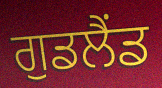
ਗੁਡਲੈਂਡ